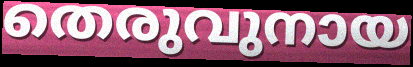
തെരുവുനായ